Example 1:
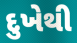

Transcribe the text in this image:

દુખેથી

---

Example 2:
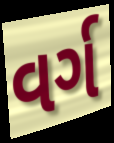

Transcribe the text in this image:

વર્ગ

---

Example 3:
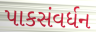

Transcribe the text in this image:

પાકસંવર્ધન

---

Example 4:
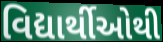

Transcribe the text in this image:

વિદ્યાર્થીઓથી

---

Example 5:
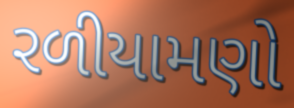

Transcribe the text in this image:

રળીયામણો